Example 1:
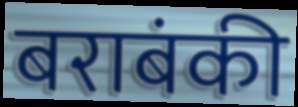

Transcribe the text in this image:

बराबंकी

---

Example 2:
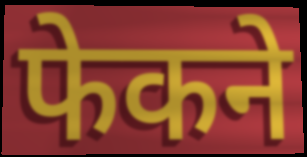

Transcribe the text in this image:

फेकने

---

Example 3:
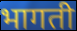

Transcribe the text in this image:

भागती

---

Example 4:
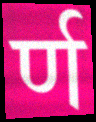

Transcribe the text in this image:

र्ण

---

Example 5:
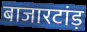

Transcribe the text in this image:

बाजारटांड़